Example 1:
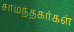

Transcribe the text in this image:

சாமந்தகர்கள்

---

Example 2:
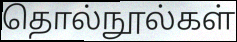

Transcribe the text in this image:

தொல்நூல்கள்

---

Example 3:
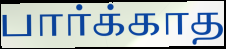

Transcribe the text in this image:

பார்க்காத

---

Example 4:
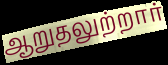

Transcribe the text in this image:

ஆறுதலுற்றார்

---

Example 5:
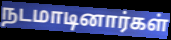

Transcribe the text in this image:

நடமாடினார்கள்